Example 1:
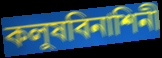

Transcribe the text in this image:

কলুষবিনাশিনী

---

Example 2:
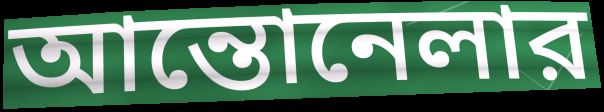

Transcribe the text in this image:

আন্তোনেলার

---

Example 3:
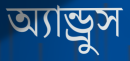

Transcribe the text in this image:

অ্যান্ড্রুস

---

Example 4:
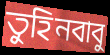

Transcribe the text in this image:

তুহিনবাবু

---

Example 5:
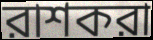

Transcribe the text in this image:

রাশকরা